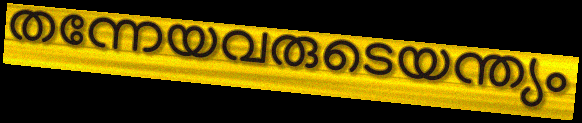
തന്നേയവരുടെയന്ത്യം